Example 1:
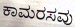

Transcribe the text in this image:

ಕಾಮರಸವು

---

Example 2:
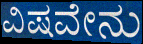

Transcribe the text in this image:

ವಿಷವೇನು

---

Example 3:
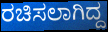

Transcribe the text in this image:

ರಚಿಸಲಾಗಿದ್ದ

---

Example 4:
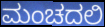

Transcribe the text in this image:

ಮಂಚದಲಿ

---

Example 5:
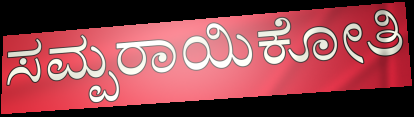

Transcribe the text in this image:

ಸಮ್ಪರಾಯಿಕೋತಿ